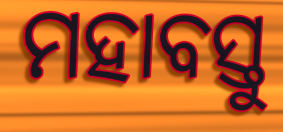
ମହାବସ୍ତୁ